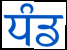
ਧੰਡ